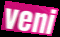
veni